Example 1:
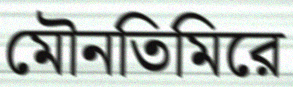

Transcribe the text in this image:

মৌনতিমিরে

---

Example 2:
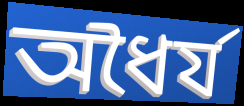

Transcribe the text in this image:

অধৈর্য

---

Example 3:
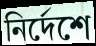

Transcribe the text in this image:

নির্দেশে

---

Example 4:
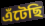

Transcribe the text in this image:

এঁটেছি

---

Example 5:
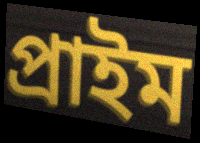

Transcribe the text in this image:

প্রাইম